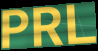
PRL